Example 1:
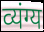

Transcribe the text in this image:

व्यंग्य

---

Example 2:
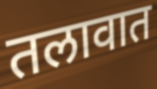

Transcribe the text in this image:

तलावात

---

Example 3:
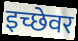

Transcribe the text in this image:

इच्छेवर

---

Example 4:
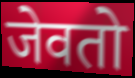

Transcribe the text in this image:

जेवतो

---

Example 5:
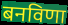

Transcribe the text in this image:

बनविणा